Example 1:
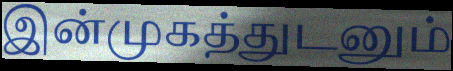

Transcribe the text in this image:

இன்முகத்துடனும்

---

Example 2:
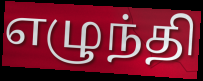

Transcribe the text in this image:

எழுந்தி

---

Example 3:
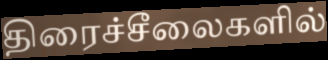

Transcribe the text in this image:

திரைச்சீலைகளில்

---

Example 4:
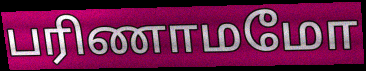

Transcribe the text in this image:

பரிணாமமோ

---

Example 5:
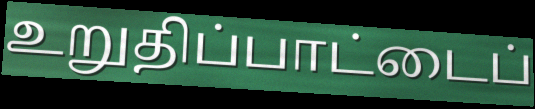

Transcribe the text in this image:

உறுதிப்பாட்டைப்